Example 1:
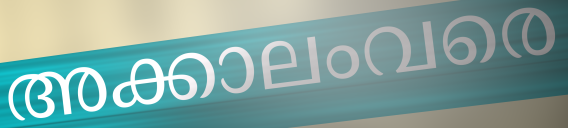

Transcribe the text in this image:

അക്കാലംവരെ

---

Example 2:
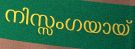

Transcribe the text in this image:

നിസ്സംഗയായ്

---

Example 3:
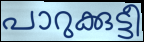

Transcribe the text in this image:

പാറുക്കുട്ടീ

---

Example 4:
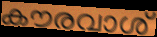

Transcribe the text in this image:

കൗരവാശ്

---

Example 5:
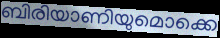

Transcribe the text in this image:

ബിരിയാണിയുമൊക്കെ